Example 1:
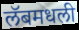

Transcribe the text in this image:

लॅबमधली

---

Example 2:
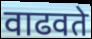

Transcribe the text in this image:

वाढवते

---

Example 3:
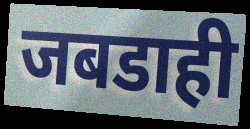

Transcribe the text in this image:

जबडाही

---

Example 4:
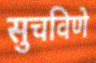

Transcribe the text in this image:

सुचविणे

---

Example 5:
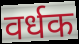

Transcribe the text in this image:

वर्धक